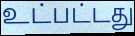
உட்பட்டது